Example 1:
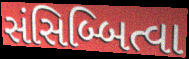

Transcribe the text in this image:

સંસિબ્બિત્વા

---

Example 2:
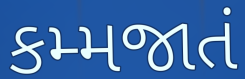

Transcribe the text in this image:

કમ્મજાતં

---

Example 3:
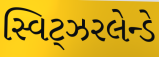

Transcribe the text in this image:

સ્વિટ્ઝરલેન્ડે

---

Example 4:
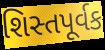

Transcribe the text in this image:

શિસ્તપૂર્વક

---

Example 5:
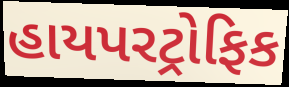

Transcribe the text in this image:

હાયપરટ્રોફિક